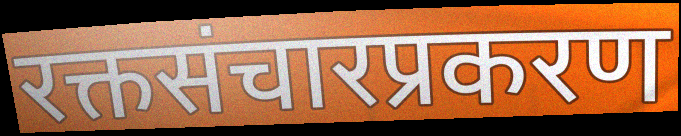
रक्तसंचारप्रकरण